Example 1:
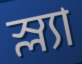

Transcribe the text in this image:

স্ল্যা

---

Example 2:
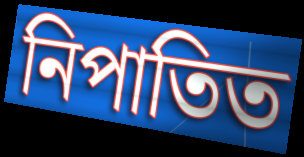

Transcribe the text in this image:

নিপাতিত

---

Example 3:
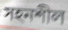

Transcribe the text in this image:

সহনশীল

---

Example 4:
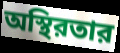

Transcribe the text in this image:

অস্থিরতার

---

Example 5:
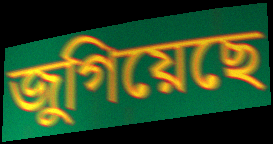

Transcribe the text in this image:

জুগিয়েছে